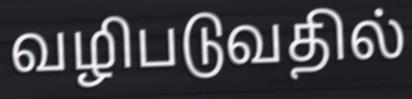
வழிபடுவதில்